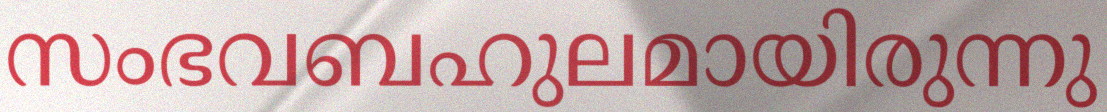
സംഭവബഹുലമായിരുന്നു